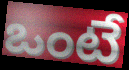
ఒంటే